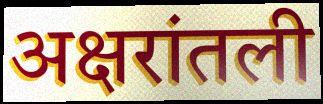
अक्षरांतली